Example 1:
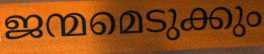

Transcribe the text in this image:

ജന്മമെടുക്കും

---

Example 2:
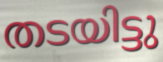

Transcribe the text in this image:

തടയിട്ടു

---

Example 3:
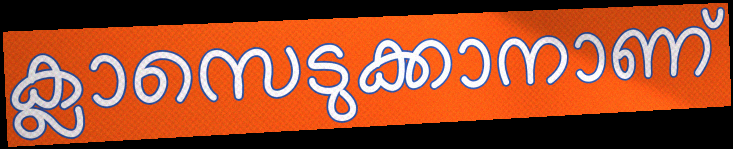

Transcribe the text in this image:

ക്ലാസെടുക്കാനാണ്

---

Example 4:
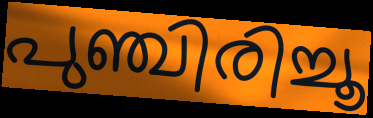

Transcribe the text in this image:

പുഞ്ചിരിച്ചൂ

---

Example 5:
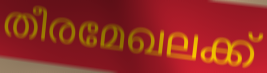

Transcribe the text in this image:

തീരമേഖലക്ക്